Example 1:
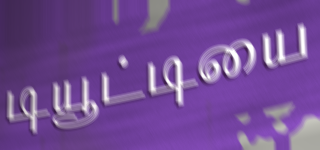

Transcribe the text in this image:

டியூட்டியை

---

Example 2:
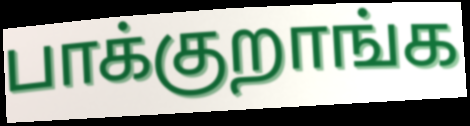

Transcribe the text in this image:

பாக்குறாங்க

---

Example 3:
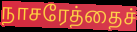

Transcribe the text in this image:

நாசரேத்தைச்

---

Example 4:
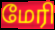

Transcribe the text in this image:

மேரி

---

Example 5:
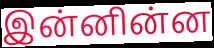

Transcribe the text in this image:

இன்னின்ன